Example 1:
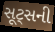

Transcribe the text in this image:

સૂટ્સની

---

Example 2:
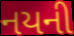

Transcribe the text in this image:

નયની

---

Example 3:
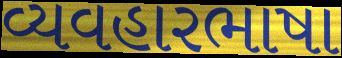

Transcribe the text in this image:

વ્યવહારભાષા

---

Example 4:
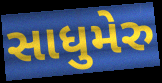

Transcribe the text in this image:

સાધુમેરુ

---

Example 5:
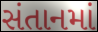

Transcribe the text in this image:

સંતાનમાં